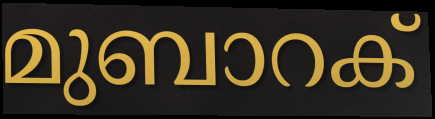
മുബാറക്